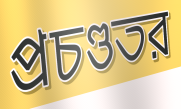
প্রচণ্ডতর